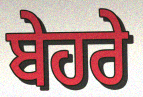
ਬੇਹਰੇ